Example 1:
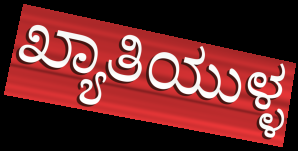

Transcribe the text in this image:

ಖ್ಯಾತಿಯುಳ್ಳ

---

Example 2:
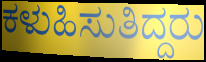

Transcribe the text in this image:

ಕಳುಹಿಸುತಿದ್ದರು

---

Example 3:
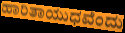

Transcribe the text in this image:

ಹಾರಿತಾಯುಧವೆಂದು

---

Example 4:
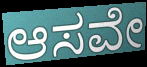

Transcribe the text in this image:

ಆಸವೇ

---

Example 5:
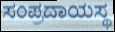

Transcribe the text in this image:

ಸಂಪ್ರದಾಯಸ್ಥ